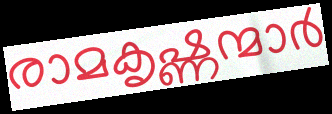
രാമകൃഷ്ണന്മാർ